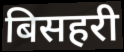
बिसहरी